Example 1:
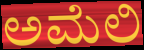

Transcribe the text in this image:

ಅಮೆಲಿ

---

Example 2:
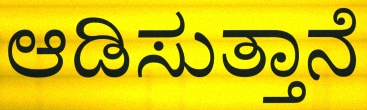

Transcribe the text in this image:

ಆಡಿಸುತ್ತಾನೆ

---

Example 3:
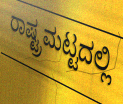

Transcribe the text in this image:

ರಾಷ್ಟ್ರಮಟ್ಟದಲ್ಲಿ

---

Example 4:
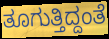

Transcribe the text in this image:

ತೂಗುತ್ತಿದ್ದಂತೆ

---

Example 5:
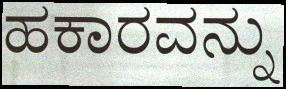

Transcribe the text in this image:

ಹಕಾರವನ್ನು